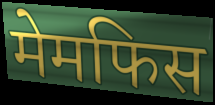
मेमफिस